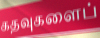
கதவுகளைப்